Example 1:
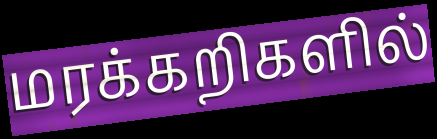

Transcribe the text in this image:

மரக்கறிகளில்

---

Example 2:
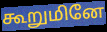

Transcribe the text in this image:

கூறுமினே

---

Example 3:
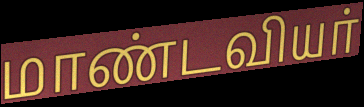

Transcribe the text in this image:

மாண்டவியர்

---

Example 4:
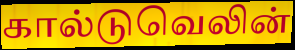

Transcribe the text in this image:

கால்டுவெலின்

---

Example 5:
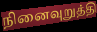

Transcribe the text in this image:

நினைவுறுத்தி